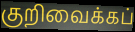
குறிவைக்கப்